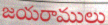
జయరాములు